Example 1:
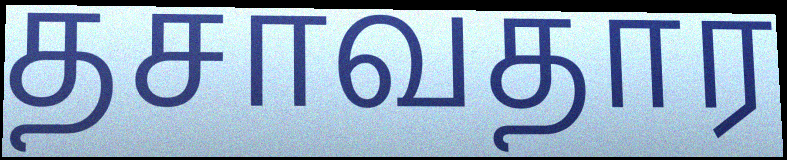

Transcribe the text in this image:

தசாவதார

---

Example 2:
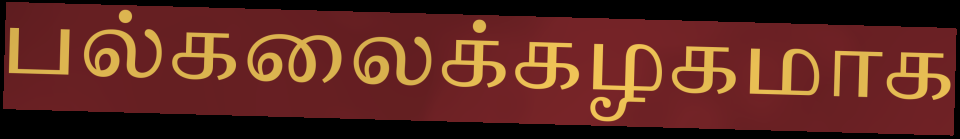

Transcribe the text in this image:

பல்கலைக்கழகமாக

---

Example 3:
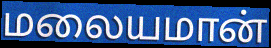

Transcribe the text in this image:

மலையமான்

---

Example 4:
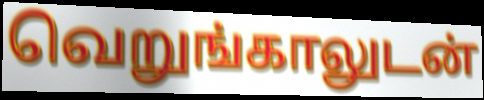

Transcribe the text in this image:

வெறுங்காலுடன்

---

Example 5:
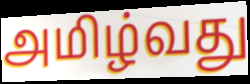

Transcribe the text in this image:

அமிழ்வது